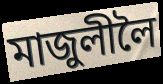
মাজুলীলৈ